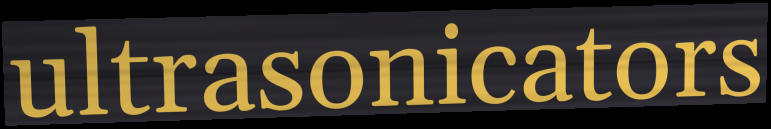
ultrasonicators